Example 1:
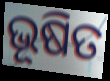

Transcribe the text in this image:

ଭୂଷିତ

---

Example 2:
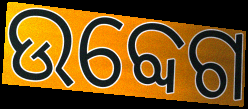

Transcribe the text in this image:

ଉବ୍ଦେଗ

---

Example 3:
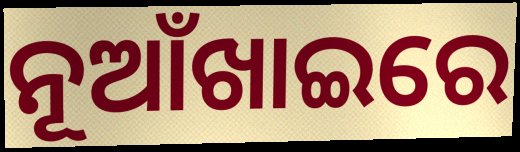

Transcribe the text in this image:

ନୂଆଁଖାଇରେ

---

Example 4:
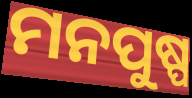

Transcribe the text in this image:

ମନପୁଷ୍ପ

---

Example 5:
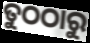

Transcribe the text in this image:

ତୁଠଠାରୁ